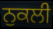
ਨੁਕਲੀ